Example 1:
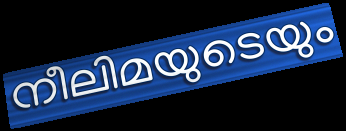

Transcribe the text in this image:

നീലിമയുടെയും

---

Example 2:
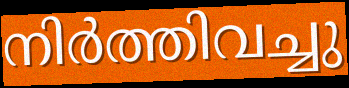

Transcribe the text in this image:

നിർത്തിവച്ചു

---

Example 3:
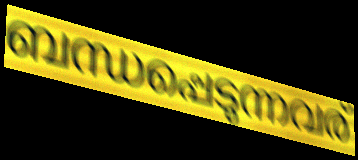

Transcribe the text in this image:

ബന്ധപ്പെടുന്നവര്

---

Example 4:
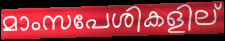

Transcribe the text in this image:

മാംസപേശികളില്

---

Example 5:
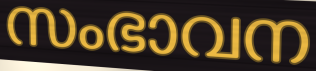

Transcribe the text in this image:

സംഭാവന